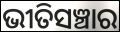
ଭୀତିସଞ୍ଚାର